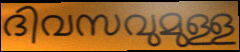
ദിവസവുമുള്ള